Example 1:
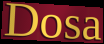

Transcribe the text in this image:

Dosa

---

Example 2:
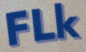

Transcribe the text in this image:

FLk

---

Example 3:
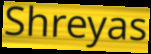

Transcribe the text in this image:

Shreyas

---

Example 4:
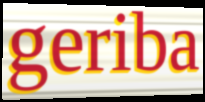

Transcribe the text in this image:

geriba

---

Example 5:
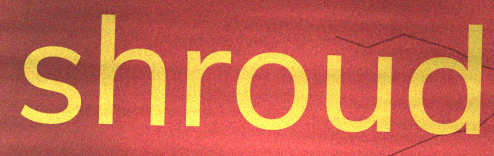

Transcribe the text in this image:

shroud